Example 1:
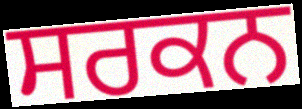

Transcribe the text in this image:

ਸਰਕਨ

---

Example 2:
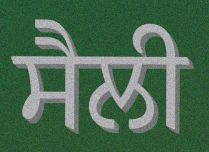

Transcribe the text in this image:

ਸੈਲੀ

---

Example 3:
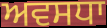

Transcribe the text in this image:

ਅਵਸਧਾ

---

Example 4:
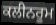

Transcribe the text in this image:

ਕਲੀਨਰੂਮ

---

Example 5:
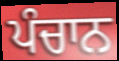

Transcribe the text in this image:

ਪੰਚਾਨ